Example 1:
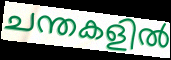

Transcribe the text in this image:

ചന്തകളിൽ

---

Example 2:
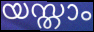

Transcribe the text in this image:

യസ്താം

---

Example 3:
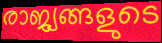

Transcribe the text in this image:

രാജ്യങ്ങളുടെ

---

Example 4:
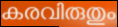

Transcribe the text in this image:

കരവിരുതും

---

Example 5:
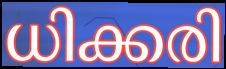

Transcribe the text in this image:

ധിക്കരി